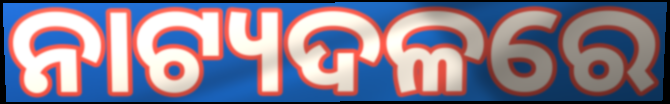
ନାଟ୍ୟଦଳରେ